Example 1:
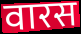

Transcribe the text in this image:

वारस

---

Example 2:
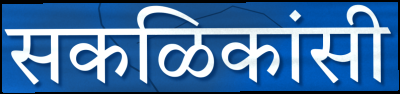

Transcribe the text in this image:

सकळिकांसी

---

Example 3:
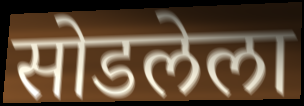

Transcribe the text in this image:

सोडलेला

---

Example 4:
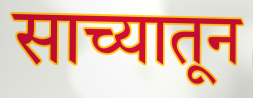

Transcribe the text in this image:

साच्यातून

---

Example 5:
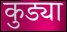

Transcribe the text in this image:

कुड्या